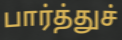
பார்த்துச்